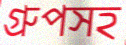
গ্রুপসহ